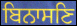
ਬਿਨਾਸਣਿ